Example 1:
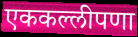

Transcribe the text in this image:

एककल्लीपणा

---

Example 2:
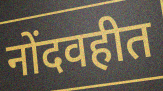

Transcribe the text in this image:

नोंदवहीत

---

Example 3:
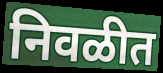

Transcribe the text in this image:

निवळीत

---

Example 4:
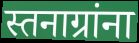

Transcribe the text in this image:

स्तनाग्रांना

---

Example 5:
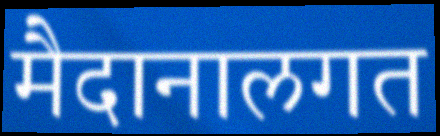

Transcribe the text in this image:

मैदानालगत